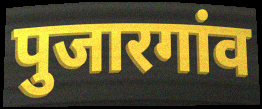
पुजारगांव